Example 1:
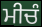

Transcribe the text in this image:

ਮੀਚੰ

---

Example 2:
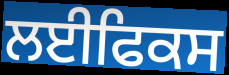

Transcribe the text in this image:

ਲਈਫਿਕਸ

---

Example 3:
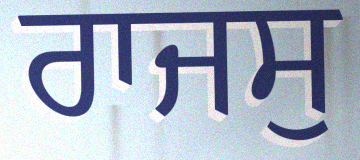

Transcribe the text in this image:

ਰਾਜਸੁ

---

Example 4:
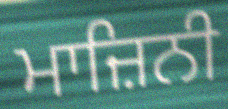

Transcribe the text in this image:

ਮਾਜ਼ਿਨੀ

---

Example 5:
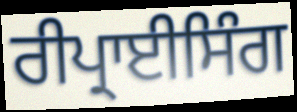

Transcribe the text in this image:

ਰੀਪ੍ਰਾਈਸਿੰਗ